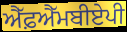
ਐੱਫ਼ਐੱਮਬੀਏਪੀ